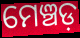
ମେଞ୍ଚଡ଼